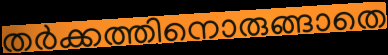
തർക്കത്തിനൊരുങ്ങാതെ